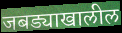
जबड्याखालील